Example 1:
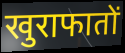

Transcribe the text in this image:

खुराफातों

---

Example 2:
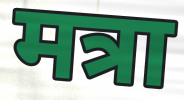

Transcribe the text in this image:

मत्रा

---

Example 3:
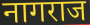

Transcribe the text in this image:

नागराज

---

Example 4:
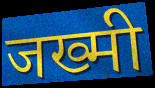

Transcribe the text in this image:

जख्मी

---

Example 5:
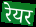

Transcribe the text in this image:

रेयर